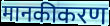
मानकीकरण